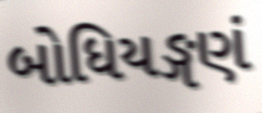
બોધિયઙ્ગણં